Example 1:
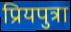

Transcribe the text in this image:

प्रियपुत्रा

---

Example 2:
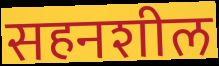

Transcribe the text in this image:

सहनशील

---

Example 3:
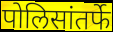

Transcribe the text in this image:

पोलिसांतर्फे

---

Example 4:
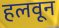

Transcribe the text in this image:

हलवून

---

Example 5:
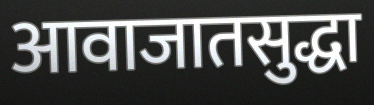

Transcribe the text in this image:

आवाजातसुद्धा